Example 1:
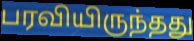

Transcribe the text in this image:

பரவியிருந்தது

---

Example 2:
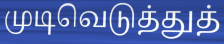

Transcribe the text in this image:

முடிவெடுத்துத்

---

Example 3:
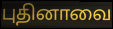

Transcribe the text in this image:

புதினாவை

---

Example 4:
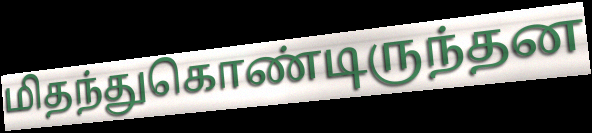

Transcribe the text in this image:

மிதந்துகொண்டிருந்தன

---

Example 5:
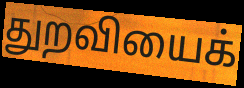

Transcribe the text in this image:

துறவியைக்